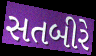
સતબીરે